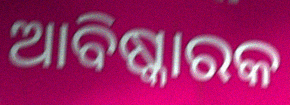
ଆବିଷ୍କାରକ